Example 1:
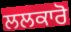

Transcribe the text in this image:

ਲਲਕਾਰੋ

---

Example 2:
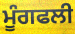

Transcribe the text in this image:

ਮੂੰਗਫਲੀ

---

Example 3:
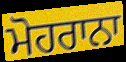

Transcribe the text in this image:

ਮੋਹਰਾਨਾ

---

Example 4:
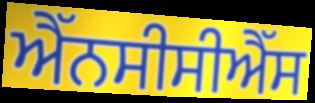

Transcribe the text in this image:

ਐੱਨਸੀਸੀਐੱਸ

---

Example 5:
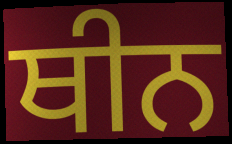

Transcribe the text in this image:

ਥੀਨ